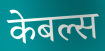
केबल्स